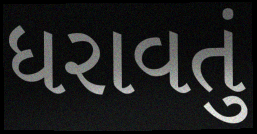
ધરાવતું